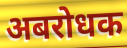
अबरोधक